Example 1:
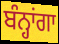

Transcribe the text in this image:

ਬੰਨ੍ਹਾਂਗਾ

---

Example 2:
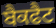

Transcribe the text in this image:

ਬੈਕਫੈਟ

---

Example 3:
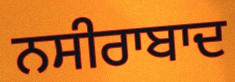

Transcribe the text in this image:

ਨਸੀਰਾਬਾਦ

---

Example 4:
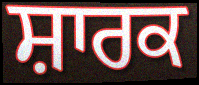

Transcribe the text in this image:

ਸ਼ਾਰਕ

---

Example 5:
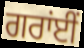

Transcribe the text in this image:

ਗਰਾਂਈਂ